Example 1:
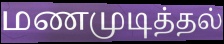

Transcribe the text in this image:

மணமுடித்தல்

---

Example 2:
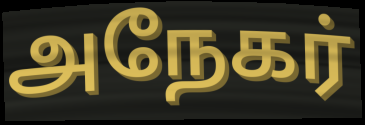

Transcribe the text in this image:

அநேகர்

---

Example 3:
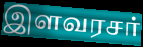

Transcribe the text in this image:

இளவரசர்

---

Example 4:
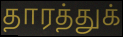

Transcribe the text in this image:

தாரத்துக்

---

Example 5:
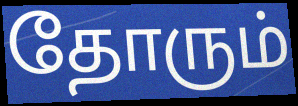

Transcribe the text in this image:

தோரும்